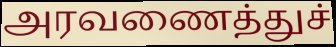
அரவணைத்துச்